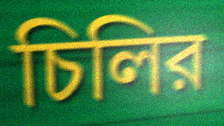
চিলির